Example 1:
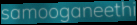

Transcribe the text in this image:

samooganeethi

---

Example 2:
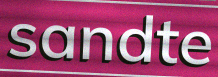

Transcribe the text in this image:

sandte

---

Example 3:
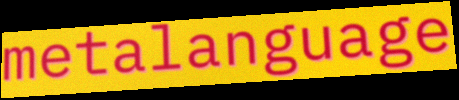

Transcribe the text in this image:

metalanguage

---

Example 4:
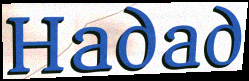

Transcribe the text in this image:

Hadad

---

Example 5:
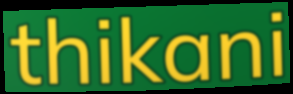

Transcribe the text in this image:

thikani